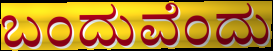
ಬಂದುವೆಂದು